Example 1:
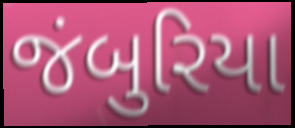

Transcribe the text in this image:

જંબુરિયા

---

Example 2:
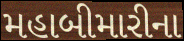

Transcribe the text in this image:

મહાબીમારીના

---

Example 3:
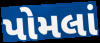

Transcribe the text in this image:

પોમલાં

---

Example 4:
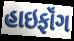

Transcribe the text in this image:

હાઇફૉંગ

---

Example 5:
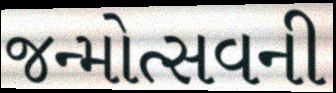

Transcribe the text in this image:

જન્મોત્સવની